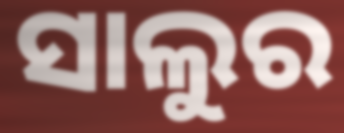
ସାଲୁର